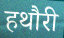
हथौरी